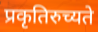
प्रकृतिरुच्यते